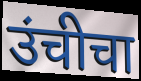
उंचीचा